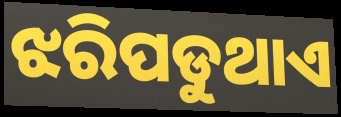
ଝରିପଡୁଥାଏ